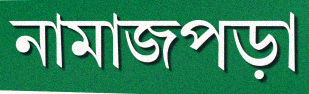
নামাজপড়া